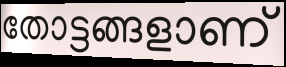
തോട്ടങ്ങളാണ്